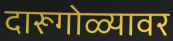
दारूगोळ्यावर